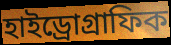
হাইড্রোগ্রাফিক